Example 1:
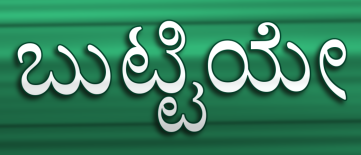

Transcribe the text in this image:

ಬುಟ್ಟಿಯೇ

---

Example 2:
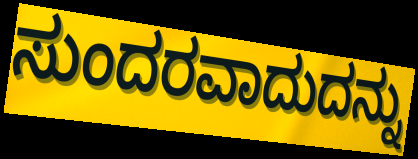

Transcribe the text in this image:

ಸುಂದರವಾದುದನ್ನು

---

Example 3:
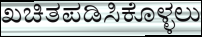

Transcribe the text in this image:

ಖಚಿತಪಡಿಸಿಕೊಳ್ಳಲು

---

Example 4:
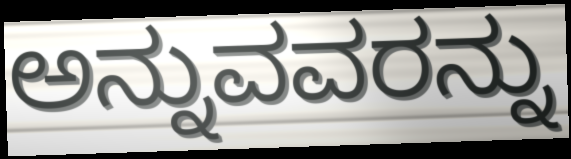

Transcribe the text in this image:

ಅನ್ನುವವರನ್ನು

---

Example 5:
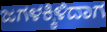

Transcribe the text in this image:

ಜಗಳಕ್ಕಿಳಿದಾಗ